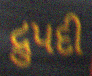
દ્રુપદી